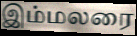
இம்மலரை